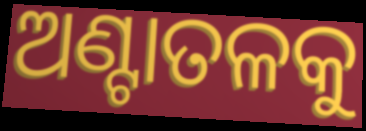
ଅଣ୍ଟାତଳକୁ